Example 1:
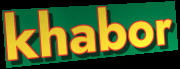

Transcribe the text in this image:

khabor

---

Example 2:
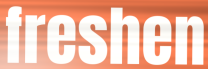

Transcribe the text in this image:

freshen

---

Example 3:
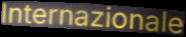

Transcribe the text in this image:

Internazionale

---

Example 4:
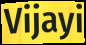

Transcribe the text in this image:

Vijayi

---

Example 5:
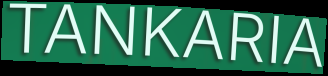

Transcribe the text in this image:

TANKARIA